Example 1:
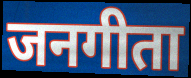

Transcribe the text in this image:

जनगीता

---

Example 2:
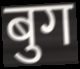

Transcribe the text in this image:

बुग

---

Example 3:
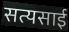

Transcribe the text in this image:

सत्यसाई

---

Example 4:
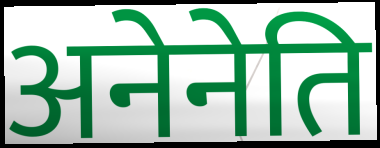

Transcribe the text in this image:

अनेनेति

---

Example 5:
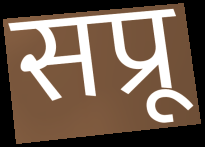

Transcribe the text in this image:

सप्रू